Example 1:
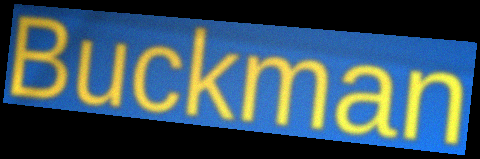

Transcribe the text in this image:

Buckman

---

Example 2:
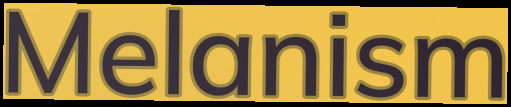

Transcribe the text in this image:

Melanism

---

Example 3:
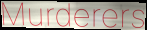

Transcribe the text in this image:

Murderers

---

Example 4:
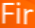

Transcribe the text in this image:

Fir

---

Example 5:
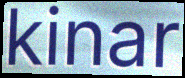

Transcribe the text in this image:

kinar